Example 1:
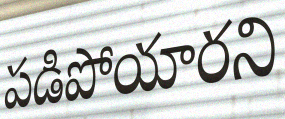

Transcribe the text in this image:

పడిపోయారని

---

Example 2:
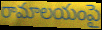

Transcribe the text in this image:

రామాలయంపై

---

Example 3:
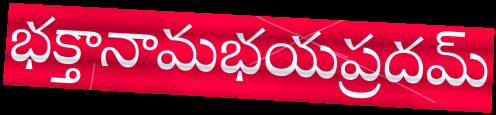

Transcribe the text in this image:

భక్తానామభయప్రదమ్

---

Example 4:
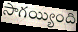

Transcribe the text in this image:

సాగయ్యింది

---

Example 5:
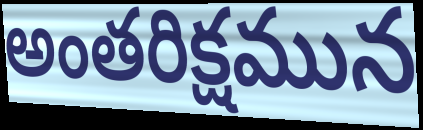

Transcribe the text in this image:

అంతరిక్షమున